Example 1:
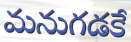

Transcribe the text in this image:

మనుగడకే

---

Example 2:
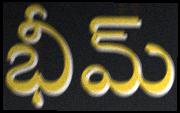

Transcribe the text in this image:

భీమ్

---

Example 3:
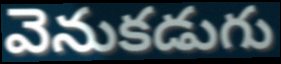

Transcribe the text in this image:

వెనుకడుగు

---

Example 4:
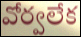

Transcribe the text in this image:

వోర్వలేక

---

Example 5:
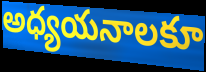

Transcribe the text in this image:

అధ్యయనాలకూ